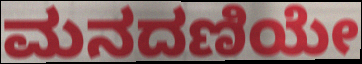
ಮನದಣಿಯೇ